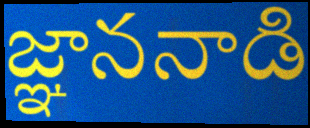
జ్ఞాననాడి